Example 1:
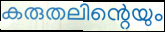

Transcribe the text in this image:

കരുതലിന്റെയും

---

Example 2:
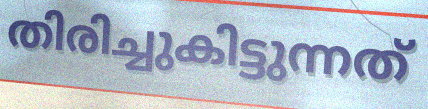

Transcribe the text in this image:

തിരിച്ചുകിട്ടുന്നത്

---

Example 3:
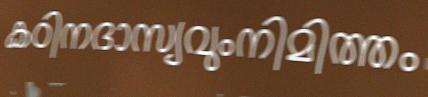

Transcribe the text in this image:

കഠിനദാസ്യവുംനിമിത്തം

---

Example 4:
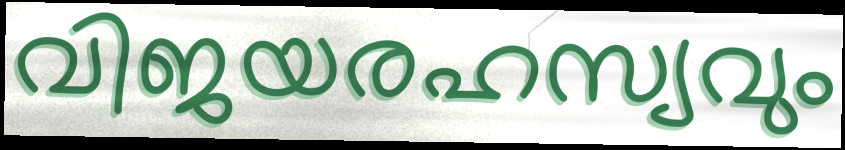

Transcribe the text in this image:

വിജയരഹസ്യവും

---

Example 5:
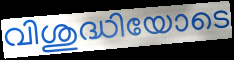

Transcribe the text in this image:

വിശുദ്ധിയോടെ